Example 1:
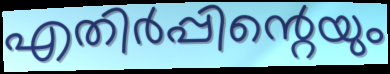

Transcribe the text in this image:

എതിർപ്പിന്റെയും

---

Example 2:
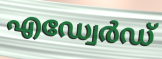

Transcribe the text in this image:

എഡ്വേർഡ്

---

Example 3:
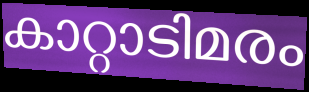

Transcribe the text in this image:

കാറ്റാടിമരം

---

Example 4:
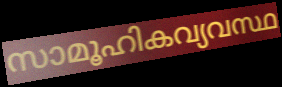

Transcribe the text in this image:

സാമൂഹികവ്യവസ്ഥ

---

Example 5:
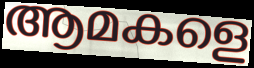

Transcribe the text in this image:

ആമകളെ